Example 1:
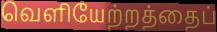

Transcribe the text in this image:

வெளியேற்றத்தைப்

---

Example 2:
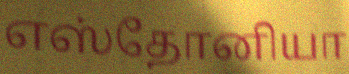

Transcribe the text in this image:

எஸ்தோனியா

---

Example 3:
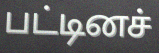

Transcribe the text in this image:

பட்டினச்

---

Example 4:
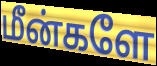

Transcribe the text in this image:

மீன்களே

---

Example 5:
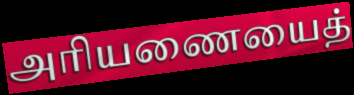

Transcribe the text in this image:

அரியணையைத்